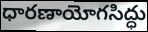
ధారణాయోగసిద్ధు